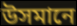
উসমানে